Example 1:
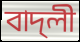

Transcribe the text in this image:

বাদ্‌লী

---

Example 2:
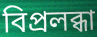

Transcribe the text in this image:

বিপ্রলব্ধা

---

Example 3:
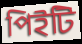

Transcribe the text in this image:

পিইটি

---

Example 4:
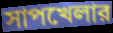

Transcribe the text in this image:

সাপখেলার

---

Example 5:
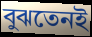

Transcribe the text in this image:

বুঝতেনই